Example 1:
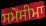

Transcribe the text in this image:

ਸਮੇਂਸੀਮਾ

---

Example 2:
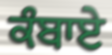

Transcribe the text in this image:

ਕੰਬਾਏ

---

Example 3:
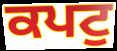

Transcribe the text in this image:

ਕਪਟੁ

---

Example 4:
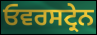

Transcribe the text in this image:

ਓਵਰਸਟ੍ਰੇਨ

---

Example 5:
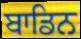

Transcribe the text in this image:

ਬਾਡਿਨ